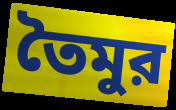
তৈমুর